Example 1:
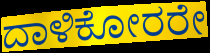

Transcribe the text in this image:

ದಾಳಿಕೋರರೇ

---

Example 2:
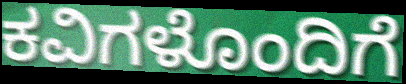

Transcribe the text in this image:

ಕವಿಗಳೊಂದಿಗೆ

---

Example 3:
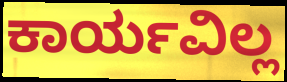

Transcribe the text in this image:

ಕಾರ್ಯವಿಲ್ಲ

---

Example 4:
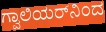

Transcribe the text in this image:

ಗ್ವಾಲಿಯರ್‌ನಿಂದ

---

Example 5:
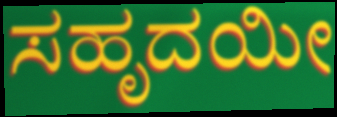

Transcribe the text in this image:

ಸಹೃದಯೀ